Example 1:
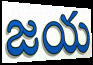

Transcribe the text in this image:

జయ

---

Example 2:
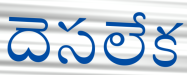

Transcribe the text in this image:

దెసలేక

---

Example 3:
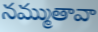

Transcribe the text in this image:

నమ్ముతావా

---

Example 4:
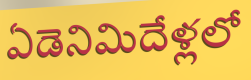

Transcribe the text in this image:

ఏడెనిమిదేళ్లలో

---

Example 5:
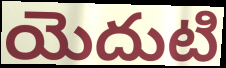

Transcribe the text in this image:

యెదుటి